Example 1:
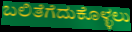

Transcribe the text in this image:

ಬಲಿತೆಗೆದುಕೊಳ್ಳಲು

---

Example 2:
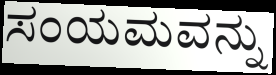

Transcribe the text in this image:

ಸಂಯಮವನ್ನು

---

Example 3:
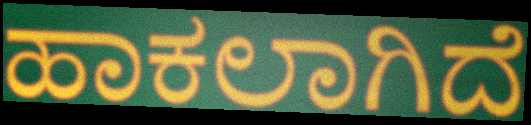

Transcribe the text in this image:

ಹಾಕಲಾಗಿದೆ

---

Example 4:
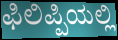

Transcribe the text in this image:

ಫಿಲಿಪ್ಪಿಯಲ್ಲಿ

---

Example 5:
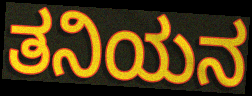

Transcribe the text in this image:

ತನಿಯನ